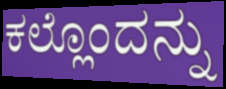
ಕಲ್ಲೊಂದನ್ನು